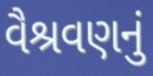
વૈશ્રવણનું